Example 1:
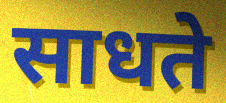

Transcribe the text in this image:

साधते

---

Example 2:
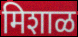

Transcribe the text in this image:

मिशाळ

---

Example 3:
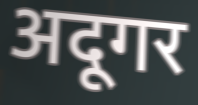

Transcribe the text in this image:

अदूगर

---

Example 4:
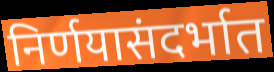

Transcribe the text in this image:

निर्णयासंदर्भात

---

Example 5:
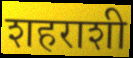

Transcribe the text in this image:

शहराशी